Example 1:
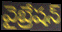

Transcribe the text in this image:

వైబ్రేషన్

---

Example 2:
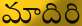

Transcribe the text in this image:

మాదిరి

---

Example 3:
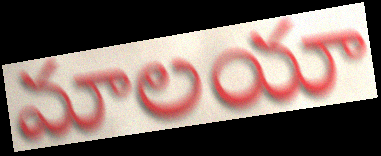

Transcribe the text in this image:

మాలయా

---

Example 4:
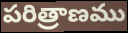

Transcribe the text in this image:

పరిత్రాణము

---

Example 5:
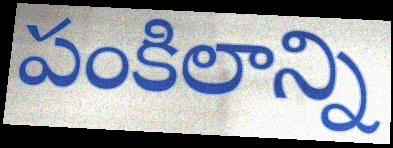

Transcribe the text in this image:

పంకిలాన్ని